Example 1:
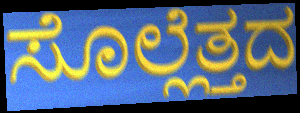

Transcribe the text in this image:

ಸೊಲ್ಲೆತ್ತದ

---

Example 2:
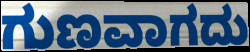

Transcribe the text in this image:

ಗುಣವಾಗದು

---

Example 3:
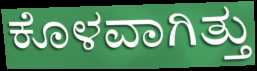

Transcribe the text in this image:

ಕೊಳವಾಗಿತ್ತು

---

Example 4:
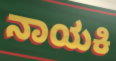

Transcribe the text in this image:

ನಾಯಕಿ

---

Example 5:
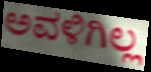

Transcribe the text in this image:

ಅವಳಿಗಿಲ್ಲ